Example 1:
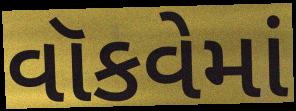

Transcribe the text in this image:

વૉકવેમાં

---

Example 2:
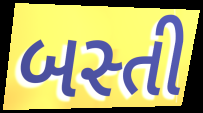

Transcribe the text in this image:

બસ્તી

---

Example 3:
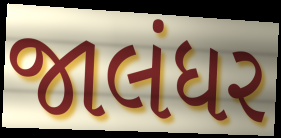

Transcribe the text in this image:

જાલંધર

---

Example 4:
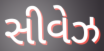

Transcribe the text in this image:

સીવેઝ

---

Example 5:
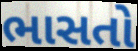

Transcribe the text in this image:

ભાસતો